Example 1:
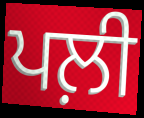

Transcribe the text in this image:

ਪਲ਼ੀ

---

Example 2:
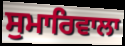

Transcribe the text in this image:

ਸੁਮਾਰਿਵਾਲਾ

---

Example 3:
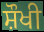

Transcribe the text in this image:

ਸ਼ੌਖੀ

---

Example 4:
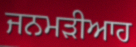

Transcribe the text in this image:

ਜਨਮੜੀਆਹ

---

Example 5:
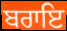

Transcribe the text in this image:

ਬਰਾਇ